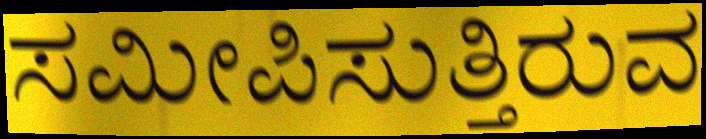
ಸಮೀಪಿಸುತ್ತಿರುವ